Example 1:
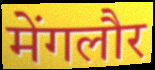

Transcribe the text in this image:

मेंगलौर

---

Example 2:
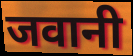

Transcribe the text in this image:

जवानी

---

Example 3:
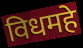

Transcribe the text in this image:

विधमहे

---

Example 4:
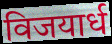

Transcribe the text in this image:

विजयार्ध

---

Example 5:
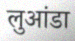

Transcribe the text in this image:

लुआंडा